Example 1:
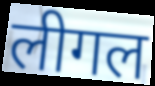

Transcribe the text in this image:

लीगल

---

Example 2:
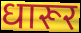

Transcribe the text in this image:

धारूर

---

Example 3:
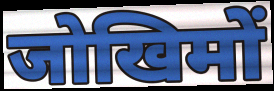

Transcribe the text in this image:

जोखिमों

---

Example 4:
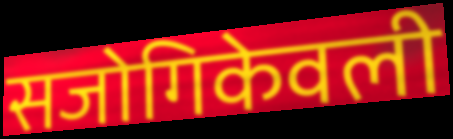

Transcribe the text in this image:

सजोगिकेवली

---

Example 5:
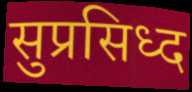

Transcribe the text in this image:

सुप्रसिध्द